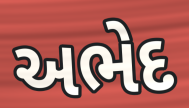
અભેદ